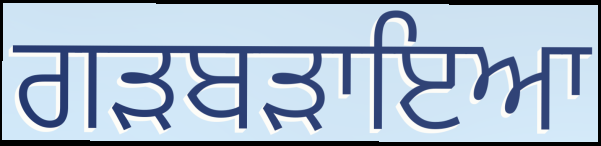
ਗੜਬੜਾਇਆ